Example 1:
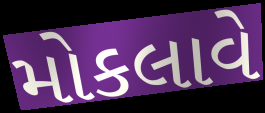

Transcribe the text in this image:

મોકલાવે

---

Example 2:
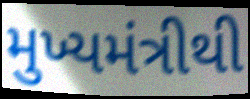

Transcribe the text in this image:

મુખ્યમંત્રીથી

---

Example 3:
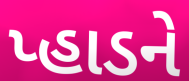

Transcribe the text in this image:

પ્હાડને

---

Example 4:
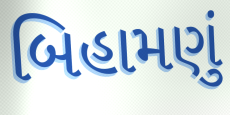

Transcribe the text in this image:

બિહામણું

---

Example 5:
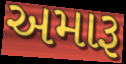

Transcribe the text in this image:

અમારૂ